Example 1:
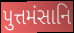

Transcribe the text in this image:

પુત્તમંસાનિ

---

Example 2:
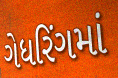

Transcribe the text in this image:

ગેધરિંગમાં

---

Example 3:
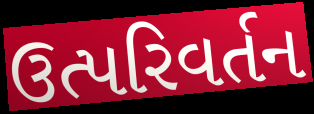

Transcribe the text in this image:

ઉત્પરિવર્તન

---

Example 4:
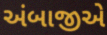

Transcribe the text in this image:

અંબાજીએ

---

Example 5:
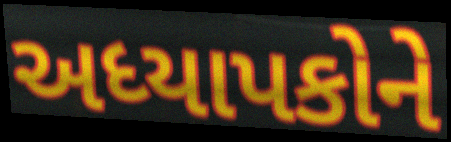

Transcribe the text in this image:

અધ્યાપકોને